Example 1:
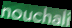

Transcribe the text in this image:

nouchali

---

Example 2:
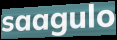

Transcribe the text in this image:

saagulo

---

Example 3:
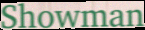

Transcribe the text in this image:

Showman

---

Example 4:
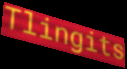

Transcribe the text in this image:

Tlingits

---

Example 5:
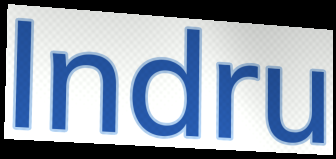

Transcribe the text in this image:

Indru